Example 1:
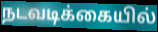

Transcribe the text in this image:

நடவடிக்கையில்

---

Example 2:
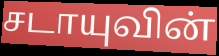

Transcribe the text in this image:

சடாயுவின்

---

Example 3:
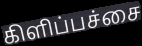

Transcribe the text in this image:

கிளிப்பச்சை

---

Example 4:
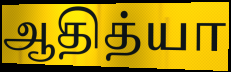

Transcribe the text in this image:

ஆதித்யா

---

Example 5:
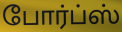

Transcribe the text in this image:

போர்ப்ஸ்